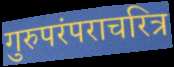
गुरुपरंपराचरित्र